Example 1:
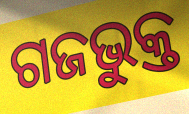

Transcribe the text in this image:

ଗଜଭୁକ୍ତ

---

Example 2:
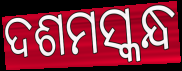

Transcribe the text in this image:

ଦଶମସ୍କନ୍ଧ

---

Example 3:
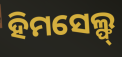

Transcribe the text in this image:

ହିମସେଲ୍ଫ୍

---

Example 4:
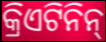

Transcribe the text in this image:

କ୍ରିଏଟିନିନ୍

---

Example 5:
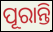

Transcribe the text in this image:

ପୂରାନ୍ତି